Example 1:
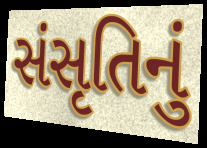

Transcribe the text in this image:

સંસૃતિનું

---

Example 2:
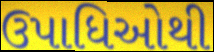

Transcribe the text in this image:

ઉપાધિઓથી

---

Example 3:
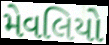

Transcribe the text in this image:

મેવલિયો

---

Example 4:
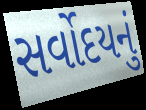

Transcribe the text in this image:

સર્વોદયનું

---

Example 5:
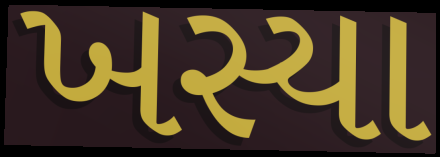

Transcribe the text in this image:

ખસ્યા